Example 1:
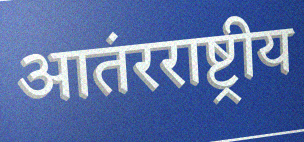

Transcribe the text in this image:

आतंरराष्ट्रीय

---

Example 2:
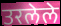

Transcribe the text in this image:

उरलेले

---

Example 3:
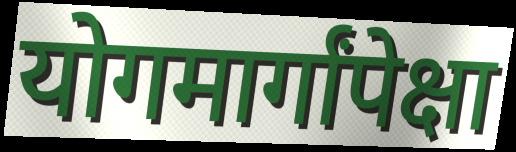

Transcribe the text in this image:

योगमार्गांपेक्षा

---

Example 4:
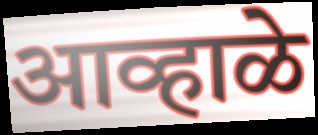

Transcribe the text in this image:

आव्हाळे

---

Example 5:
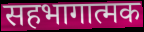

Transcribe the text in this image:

सहभागात्मक